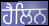
ਹੈਲਿਨ